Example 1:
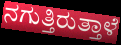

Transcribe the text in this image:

ನಗುತ್ತಿರುತ್ತಾಳೆ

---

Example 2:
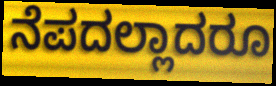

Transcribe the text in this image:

ನೆಪದಲ್ಲಾದರೂ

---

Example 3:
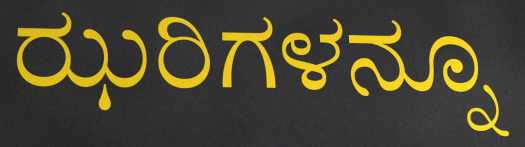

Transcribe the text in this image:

ಝರಿಗಳನ್ನೂ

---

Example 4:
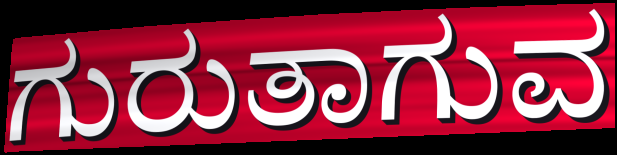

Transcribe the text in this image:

ಗುರುತಾಗುವ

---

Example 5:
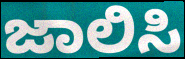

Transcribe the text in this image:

ಜಾಲಿಸಿ